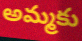
అమ్మకు